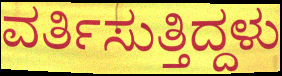
ವರ್ತಿಸುತ್ತಿದ್ದಳು